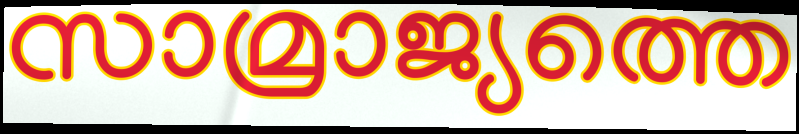
സാമ്രാജ്യത്തെ